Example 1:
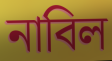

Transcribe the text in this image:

নাবিল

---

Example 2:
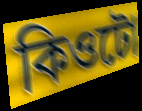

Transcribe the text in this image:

কিওটো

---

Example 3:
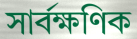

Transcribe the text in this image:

সার্বক্ষণিক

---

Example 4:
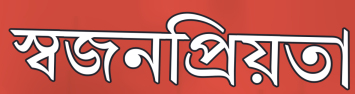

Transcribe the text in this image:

স্বজনপ্রিয়তা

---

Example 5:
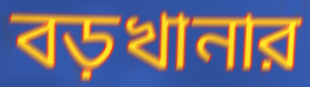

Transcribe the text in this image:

বড়খানার